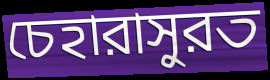
চেহারাসুরত